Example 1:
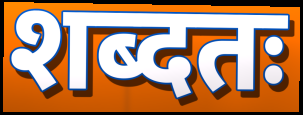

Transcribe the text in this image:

शब्दतः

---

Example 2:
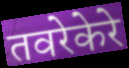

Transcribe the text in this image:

तवरेकेरे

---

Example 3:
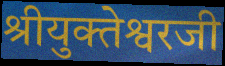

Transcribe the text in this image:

श्रीयुक्तेश्वरजी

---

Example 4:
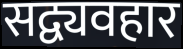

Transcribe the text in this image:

सद्व्यवहार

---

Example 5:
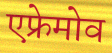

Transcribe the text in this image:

एफ्रेमोव